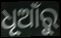
ଧୂଆଁରୁ